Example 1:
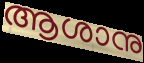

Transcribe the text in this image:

ആശാനു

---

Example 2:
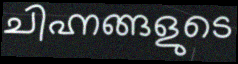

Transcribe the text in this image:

ചിഹ്നങ്ങളുടെ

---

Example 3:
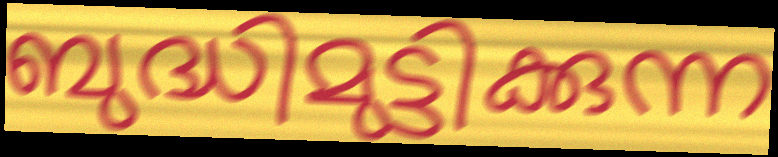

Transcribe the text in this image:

ബുദ്ധിമുട്ടിക്കുന്ന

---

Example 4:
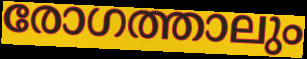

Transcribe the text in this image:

രോഗത്താലും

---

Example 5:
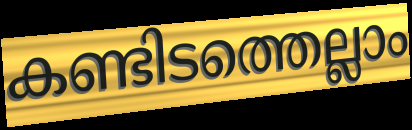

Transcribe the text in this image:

കണ്ടിടത്തെല്ലാം